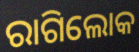
ରାଗିଲୋକ